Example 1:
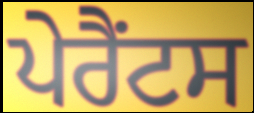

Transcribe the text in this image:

ਪੇਰੈਂਟਸ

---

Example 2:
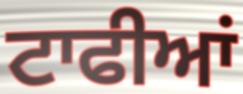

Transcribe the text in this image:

ਟਾਫੀਆਂ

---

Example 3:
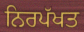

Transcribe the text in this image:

ਨਿਰਪੱਖਤ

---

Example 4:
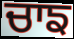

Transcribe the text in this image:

ਚਾਙ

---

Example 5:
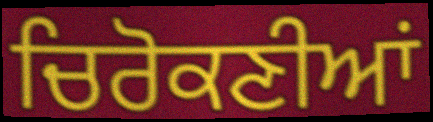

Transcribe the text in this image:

ਚਿਰੋਕਣੀਆਂ